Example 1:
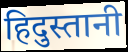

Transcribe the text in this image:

हिदुस्तानी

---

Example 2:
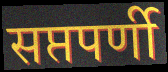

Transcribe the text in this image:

सप्तपर्णी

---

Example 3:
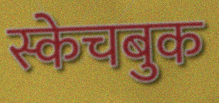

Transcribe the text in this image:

स्केचबुक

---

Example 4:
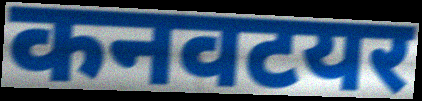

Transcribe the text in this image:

कनवटयर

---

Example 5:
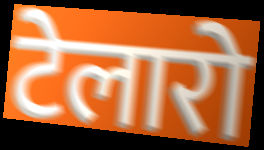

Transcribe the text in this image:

टेलारो